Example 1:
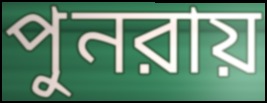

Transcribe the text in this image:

পুনরায়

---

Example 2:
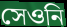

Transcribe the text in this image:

সেওনি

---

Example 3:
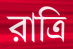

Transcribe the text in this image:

রাত্রি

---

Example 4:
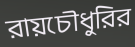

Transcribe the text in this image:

রায়চৌধুরির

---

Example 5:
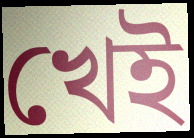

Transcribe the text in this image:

খেই